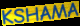
KSHAMA